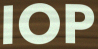
IOP